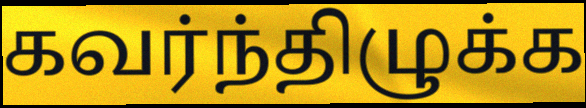
கவர்ந்திழுக்க